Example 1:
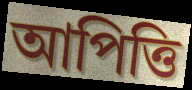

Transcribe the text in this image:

আপিত্তি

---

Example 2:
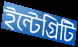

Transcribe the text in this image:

ইন্টেগ্রিটি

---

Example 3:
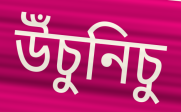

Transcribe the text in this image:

উঁচুনিচু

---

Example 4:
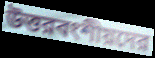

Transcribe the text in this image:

উত্তরবংশীয়দের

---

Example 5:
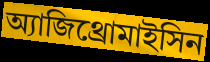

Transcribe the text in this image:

অ্যাজিথ্রোমাইসিন